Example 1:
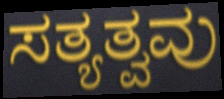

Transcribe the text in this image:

ಸತ್ಯತ್ವವು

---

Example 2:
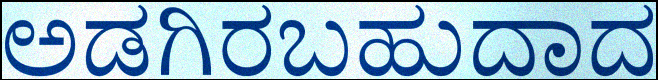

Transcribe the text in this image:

ಅಡಗಿರಬಹುದಾದ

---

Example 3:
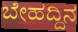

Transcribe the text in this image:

ಬೇಹದ್ದಿನ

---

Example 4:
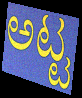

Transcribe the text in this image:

ಅಟ್ಟ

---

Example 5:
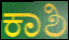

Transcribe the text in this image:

ಕಾಶಿ